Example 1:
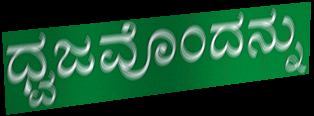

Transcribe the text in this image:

ಧ್ವಜವೊಂದನ್ನು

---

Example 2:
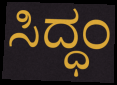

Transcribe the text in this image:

ಸಿದ್ಧಂ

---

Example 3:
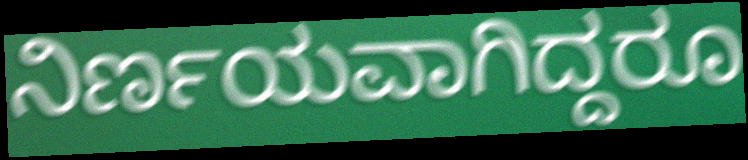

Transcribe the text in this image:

ನಿರ್ಣಯವಾಗಿದ್ದರೂ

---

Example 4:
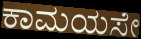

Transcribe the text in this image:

ಕಾಮಯಸೇ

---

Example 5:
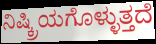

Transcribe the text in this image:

ನಿಷ್ಕ್ರಿಯಗೊಳ್ಳುತ್ತದೆ